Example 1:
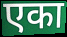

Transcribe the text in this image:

एका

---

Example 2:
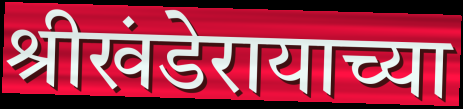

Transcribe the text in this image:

श्रीखंडेरायाच्या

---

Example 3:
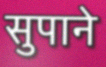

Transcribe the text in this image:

सुपाने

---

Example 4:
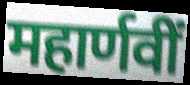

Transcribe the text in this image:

महार्णवीं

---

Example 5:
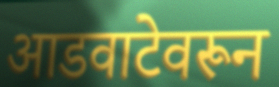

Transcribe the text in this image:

आडवाटेवरून